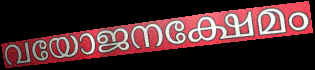
വയോജനക്ഷേമം